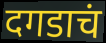
दगडाचं